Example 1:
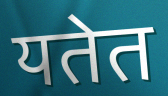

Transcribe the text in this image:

यतेत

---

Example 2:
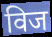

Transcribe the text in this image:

विज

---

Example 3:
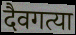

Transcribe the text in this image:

दैवगत्या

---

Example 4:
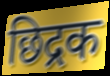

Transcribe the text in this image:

छिद्रक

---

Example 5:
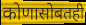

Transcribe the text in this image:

कोणासोबतही